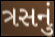
ત્રસનું